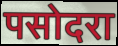
पसोदरा